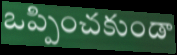
ఒప్పించకుండా